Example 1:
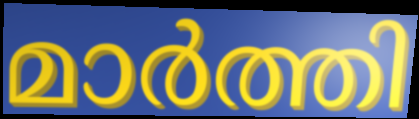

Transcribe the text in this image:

മാർത്തി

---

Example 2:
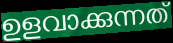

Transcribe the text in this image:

ഉളവാക്കുന്നത്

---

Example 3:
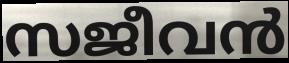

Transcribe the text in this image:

സജീവൻ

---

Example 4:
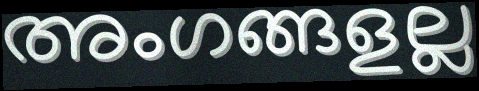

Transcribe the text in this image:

അംഗങ്ങളല്ല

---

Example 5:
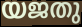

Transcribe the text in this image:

യജതു